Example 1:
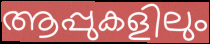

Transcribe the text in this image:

ആപ്പുകളിലും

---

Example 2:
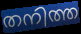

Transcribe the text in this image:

തനിത്ത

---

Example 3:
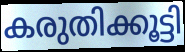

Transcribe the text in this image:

കരുതിക്കൂട്ടി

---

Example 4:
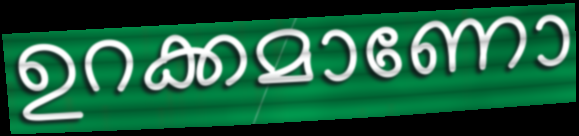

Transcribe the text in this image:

ഉറക്കമാണോ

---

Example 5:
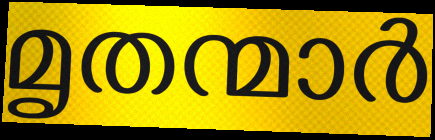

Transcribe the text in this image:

മൃതന്മാർ